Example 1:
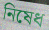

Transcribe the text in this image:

নিষেধ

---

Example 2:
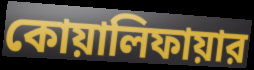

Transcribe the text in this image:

কোয়ালিফায়ার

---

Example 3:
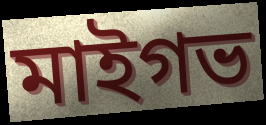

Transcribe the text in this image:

মাইগভ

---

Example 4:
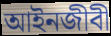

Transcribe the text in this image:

আইনজীবী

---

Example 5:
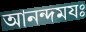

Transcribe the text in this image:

আনন্দমযঃ